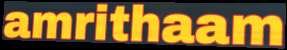
amrithaam